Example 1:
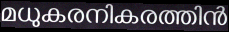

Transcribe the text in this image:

മധുകരനികരത്തിൻ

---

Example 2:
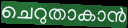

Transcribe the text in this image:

ചെറുതാകാൻ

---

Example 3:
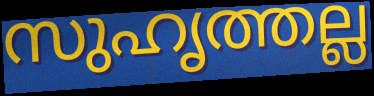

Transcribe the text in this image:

സുഹൃത്തല്ല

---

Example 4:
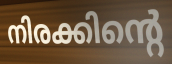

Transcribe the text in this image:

നിരക്കിന്റെ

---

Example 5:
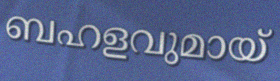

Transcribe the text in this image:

ബഹളവുമായ്